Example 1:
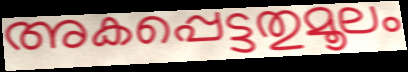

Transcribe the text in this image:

അകപ്പെട്ടതുമൂലം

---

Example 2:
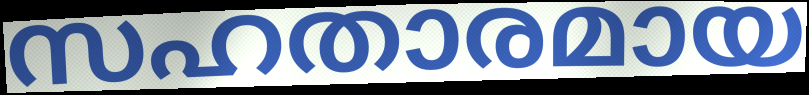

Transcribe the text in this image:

സഹതാരമായ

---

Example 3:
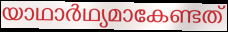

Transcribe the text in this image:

യാഥാർഥ്യമാകേണ്ടത്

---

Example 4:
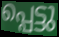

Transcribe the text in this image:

പ്പെട്ടു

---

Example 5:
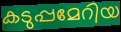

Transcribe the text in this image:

കടുപ്പമേറിയ